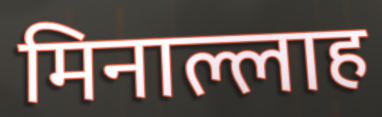
मिनाल्लाह